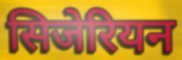
सिजेरियन